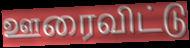
ஊரைவிட்டு